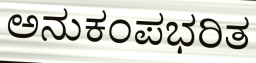
ಅನುಕಂಪಭರಿತ